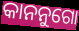
କାନନୁଗୋ